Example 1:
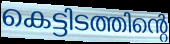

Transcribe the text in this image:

കെട്ടിടത്തിന്റെ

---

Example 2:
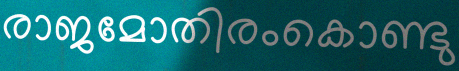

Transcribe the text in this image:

രാജമോതിരംകൊണ്ടു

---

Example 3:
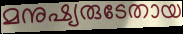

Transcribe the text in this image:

മനുഷ്യരുടേതായ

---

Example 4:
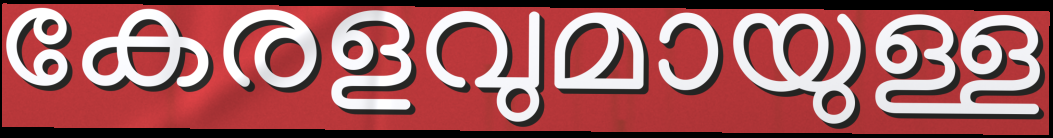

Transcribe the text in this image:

കേരളവുമായുള്ള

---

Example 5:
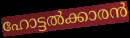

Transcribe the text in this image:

ഹോട്ടൽക്കാരൻ